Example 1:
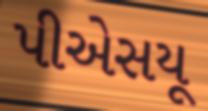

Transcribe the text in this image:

પીએસયૂ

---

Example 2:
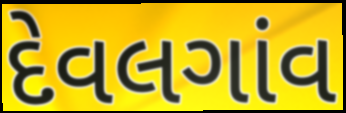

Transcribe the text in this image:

દેવલગાંવ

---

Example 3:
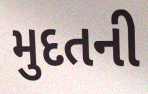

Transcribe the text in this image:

મુદતની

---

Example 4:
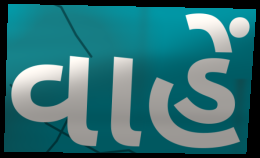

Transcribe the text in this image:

વાહેં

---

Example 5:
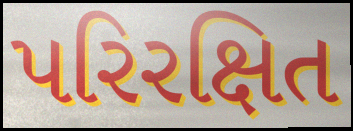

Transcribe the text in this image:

પરિરક્ષિત